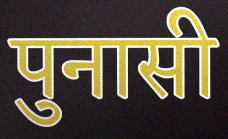
पुनासी